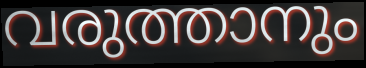
വരുത്താനും